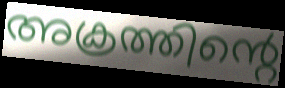
അക്രത്തിന്റെ